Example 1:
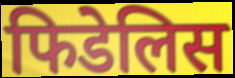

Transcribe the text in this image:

फिडेलिस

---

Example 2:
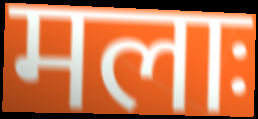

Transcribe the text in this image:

मलाः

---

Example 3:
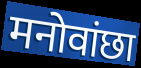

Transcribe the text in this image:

मनोवांछा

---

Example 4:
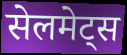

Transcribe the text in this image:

सेलमेट्स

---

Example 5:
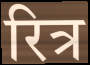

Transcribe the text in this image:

रित्र